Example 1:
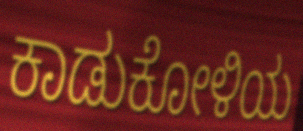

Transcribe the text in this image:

ಕಾಡುಕೋಳಿಯ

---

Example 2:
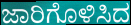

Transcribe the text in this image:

ಜಾರಿಗೊಳಿಸಿದ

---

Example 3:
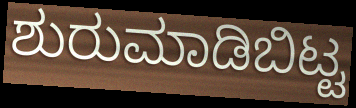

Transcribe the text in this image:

ಶುರುಮಾಡಿಬಿಟ್ಟ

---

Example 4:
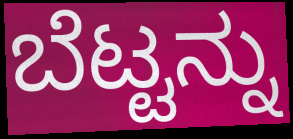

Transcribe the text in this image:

ಬೆಟ್ಟನ್ನು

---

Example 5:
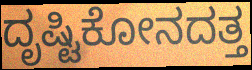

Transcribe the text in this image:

ದೃಷ್ಟಿಕೋನದತ್ತ